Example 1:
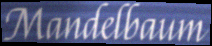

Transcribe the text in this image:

Mandelbaum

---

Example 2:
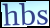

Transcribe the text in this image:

hbs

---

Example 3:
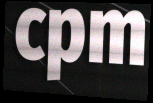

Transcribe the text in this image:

cpm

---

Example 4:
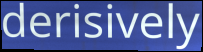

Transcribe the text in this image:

derisively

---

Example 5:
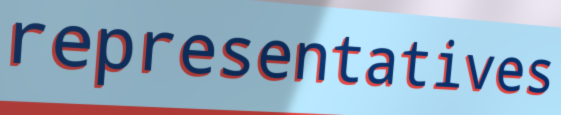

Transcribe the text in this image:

representatives